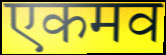
एकमव